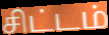
சிட்டம்